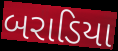
બરાડિયા